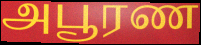
அபூரண